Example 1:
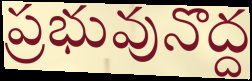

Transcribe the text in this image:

ప్రభువునొద్ద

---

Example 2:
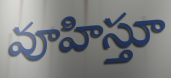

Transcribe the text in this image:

వూహిస్తూ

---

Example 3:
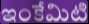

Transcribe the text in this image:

ఇంకేమిటి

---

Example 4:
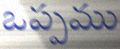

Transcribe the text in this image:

ఒప్పము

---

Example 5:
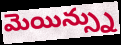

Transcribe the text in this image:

మెయిన్స్ను